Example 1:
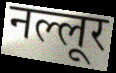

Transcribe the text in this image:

नल्लूर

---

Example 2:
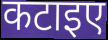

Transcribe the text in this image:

कटाइए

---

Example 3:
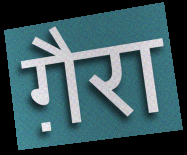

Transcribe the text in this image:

ग़ैरा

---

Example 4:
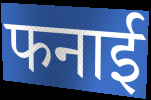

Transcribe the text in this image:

फनाई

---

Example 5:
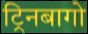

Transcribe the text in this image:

ट्रिनबागो